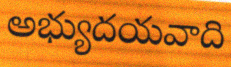
అభ్యుదయవాది